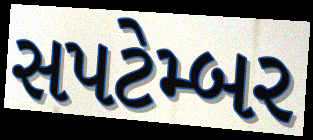
સપટેમ્બર